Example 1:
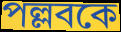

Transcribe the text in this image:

পল্লবকে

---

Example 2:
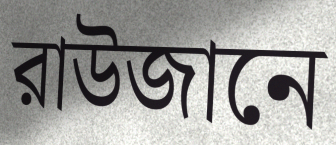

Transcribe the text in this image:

রাউজানে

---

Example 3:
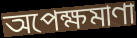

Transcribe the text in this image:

অপেক্ষমাণা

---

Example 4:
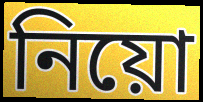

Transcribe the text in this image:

নিয়ো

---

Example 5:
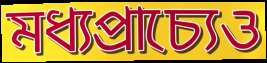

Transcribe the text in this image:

মধ্যপ্রাচ্যেও